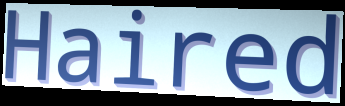
Haired